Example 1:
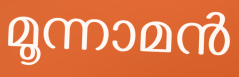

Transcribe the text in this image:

മൂന്നാമൻ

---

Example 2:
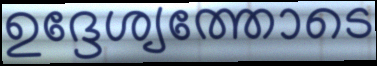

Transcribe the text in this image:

ഉദ്ദേശ്യത്തോടെ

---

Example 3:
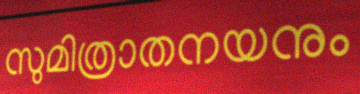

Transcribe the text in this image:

സുമിത്രാതനയനും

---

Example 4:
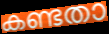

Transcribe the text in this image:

കണ്ടതാ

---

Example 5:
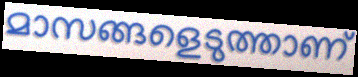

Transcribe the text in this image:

മാസങ്ങളെടുത്താണ്